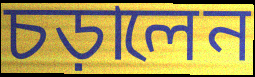
চড়ালেন